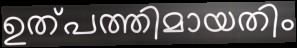
ഉത്പത്തിമായതിം